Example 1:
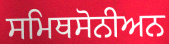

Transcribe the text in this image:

ਸਮਿਥਸੋਨੀਅਨ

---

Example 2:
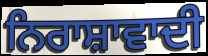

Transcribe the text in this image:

ਨਿਰਾਸ਼ਾਵਾਦੀ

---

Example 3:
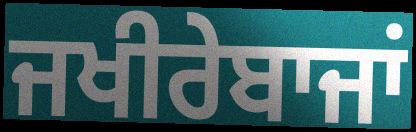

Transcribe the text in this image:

ਜਖੀਰੇਬਾਜਾਂ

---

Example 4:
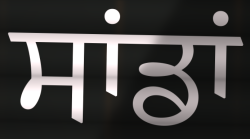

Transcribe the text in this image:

ਸਾਂਡਾਂ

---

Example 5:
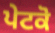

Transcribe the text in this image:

ਪੇਟਕੋ